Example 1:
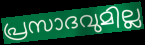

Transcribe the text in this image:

പ്രസാദവുമില്ല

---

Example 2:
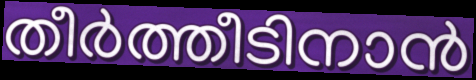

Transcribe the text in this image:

തീർത്തീടിനാൻ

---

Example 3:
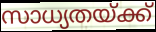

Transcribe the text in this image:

സാധ്യതയ്ക്ക്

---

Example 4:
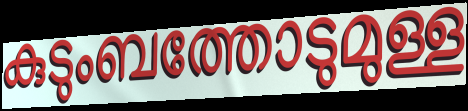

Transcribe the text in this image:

കുടുംബത്തോടുമുള്ള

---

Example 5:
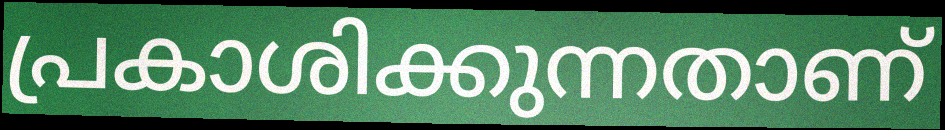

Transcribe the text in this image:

പ്രകാശിക്കുന്നതാണ്